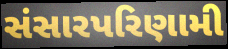
સંસારપરિણામી